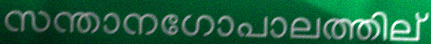
സന്താനഗോപാലത്തില്